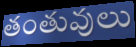
తంతువులు